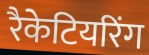
रैकेटियरिंग